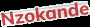
Nzokande